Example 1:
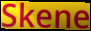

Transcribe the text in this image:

Skene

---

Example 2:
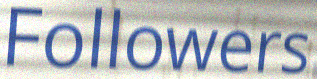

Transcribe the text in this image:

Followers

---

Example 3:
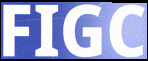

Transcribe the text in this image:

FIGC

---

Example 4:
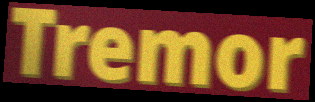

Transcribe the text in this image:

Tremor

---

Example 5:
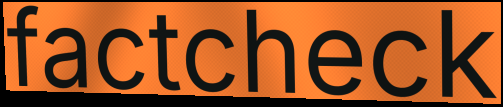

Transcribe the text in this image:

factcheck